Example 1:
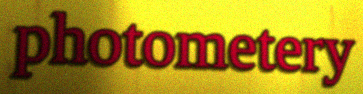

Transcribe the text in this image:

photometery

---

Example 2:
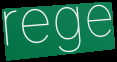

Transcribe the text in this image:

rege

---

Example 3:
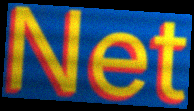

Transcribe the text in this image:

Net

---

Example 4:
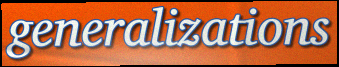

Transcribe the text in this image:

generalizations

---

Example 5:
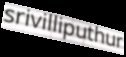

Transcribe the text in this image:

srivilliputhur